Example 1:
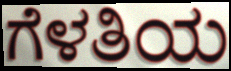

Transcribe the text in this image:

ಗೆಳತಿಯ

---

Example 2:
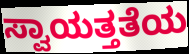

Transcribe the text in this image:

ಸ್ವಾಯತ್ತತೆಯ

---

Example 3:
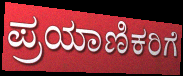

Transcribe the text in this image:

ಪ್ರಯಾಣಿಕರಿಗೆ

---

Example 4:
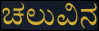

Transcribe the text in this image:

ಚಲುವಿನ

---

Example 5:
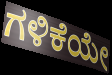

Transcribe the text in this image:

ಗಳಿಕೆಯೇ